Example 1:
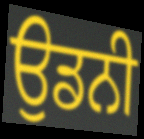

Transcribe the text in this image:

ਉਡਨੀ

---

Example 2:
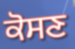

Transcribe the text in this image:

ਕੋਸਣ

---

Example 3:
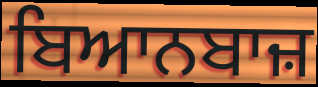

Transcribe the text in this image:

ਬਿਆਨਬਾਜ਼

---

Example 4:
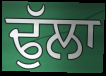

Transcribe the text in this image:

ਢੁੱਲਾ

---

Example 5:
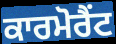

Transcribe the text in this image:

ਕਾਰਮੋਰੈਂਟ